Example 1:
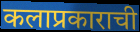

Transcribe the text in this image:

कलाप्रकाराची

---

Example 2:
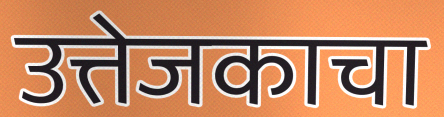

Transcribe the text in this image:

उत्तेजकाचा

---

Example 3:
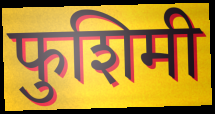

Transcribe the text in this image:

फुशिमी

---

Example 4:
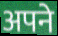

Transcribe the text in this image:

अपने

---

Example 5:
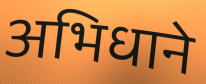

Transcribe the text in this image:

अभिधाने